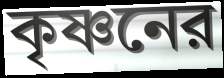
কৃষ্ণনের